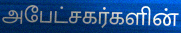
அபேட்சகர்களின்